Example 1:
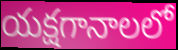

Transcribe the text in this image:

యక్షగానాలలో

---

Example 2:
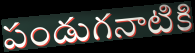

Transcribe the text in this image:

పండుగనాటికి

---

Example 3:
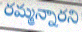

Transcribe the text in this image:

రమ్మన్నారని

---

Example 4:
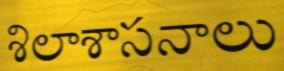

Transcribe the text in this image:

శిలాశాసనాలు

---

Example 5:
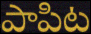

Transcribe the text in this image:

పాపిట